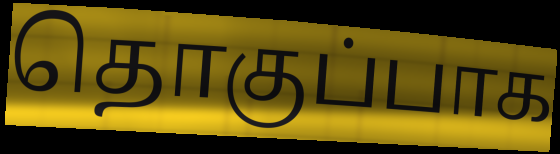
தொகுப்பாக